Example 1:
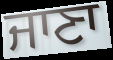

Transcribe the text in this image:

ਜਾਣਾ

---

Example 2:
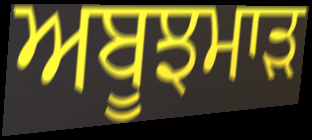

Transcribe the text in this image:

ਅਬੂਝਮਾੜ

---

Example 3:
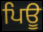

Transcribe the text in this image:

ਪਿਊ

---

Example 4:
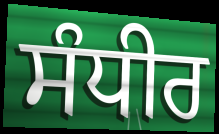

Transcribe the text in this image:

ਸੰਧੀਰ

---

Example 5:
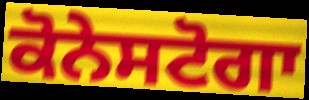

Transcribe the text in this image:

ਕੋਨੇਸਟੋਗਾ